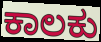
ಕಾಲಕು